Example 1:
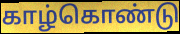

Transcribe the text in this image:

காழ்கொண்டு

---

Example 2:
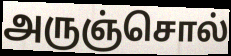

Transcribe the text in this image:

அருஞ்சொல்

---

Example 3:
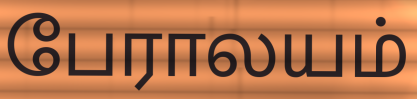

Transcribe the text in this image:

பேராலயம்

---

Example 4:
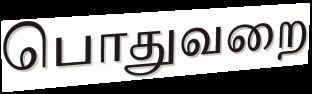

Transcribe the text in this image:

பொதுவறை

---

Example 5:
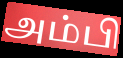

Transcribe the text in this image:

அம்பி